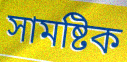
সামষ্টিক